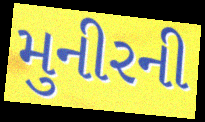
મુનીરની